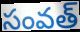
సంవత్